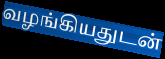
வழங்கியதுடன்